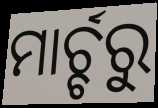
ମାର୍ଚ୍ଚରୁ